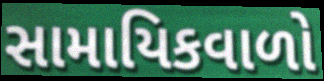
સામાયિકવાળો